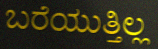
ಬರೆಯುತ್ತಿಲ್ಲ